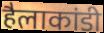
हैलाकांडी